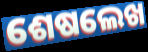
ଶେଷଲେଖ